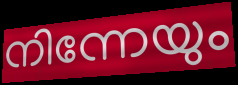
നിന്നേയും